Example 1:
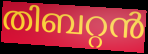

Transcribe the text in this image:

തിബറ്റൻ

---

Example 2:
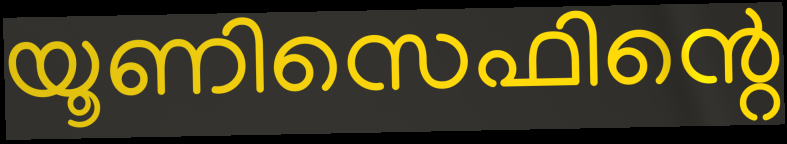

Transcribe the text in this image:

യൂണിസെഫിന്റെ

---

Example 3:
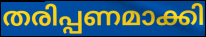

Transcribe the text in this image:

തരിപ്പണമാക്കി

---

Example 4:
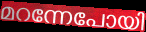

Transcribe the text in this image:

മറന്നേപോയി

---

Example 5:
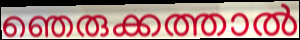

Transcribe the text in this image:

ഞെരുക്കത്താൽ